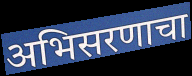
अभिसरणाचा